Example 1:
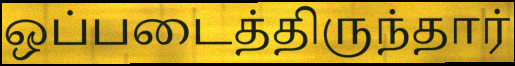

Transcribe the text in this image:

ஒப்படைத்திருந்தார்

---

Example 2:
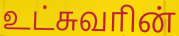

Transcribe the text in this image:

உட்சுவரின்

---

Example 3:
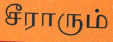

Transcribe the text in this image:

சீராரும்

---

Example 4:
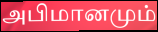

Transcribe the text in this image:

அபிமானமும்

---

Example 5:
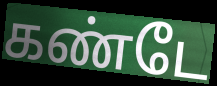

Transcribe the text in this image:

கண்டே